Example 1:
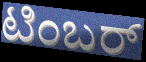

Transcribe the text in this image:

ಟಿಂಬರ್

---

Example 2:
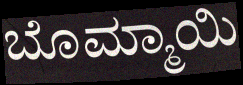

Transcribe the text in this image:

ಬೊಮ್ಮಾಯಿ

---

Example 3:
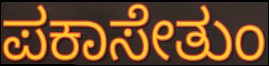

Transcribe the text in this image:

ಪಕಾಸೇತುಂ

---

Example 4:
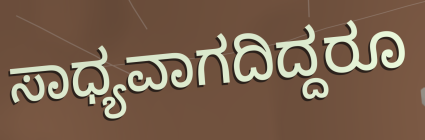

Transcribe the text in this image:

ಸಾಧ್ಯವಾಗದಿದ್ದರೂ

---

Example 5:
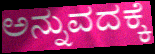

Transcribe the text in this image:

ಅನ್ನುವದಕ್ಕೆ